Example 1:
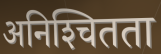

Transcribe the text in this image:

अनिश्‍चितता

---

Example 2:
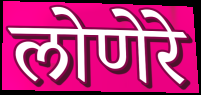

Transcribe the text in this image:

लोणेरे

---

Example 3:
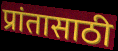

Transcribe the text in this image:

प्रांतासाठी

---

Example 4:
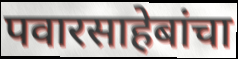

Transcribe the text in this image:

पवारसाहेबांचा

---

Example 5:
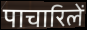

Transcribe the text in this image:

पाचारिलें